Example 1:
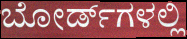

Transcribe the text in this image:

ಬೋರ್ಡ್‌ಗಳಲ್ಲಿ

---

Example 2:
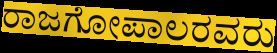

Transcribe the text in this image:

ರಾಜಗೋಪಾಲರವರು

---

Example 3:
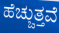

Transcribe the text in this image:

ಹೆಚ್ಚುತ್ತವೆ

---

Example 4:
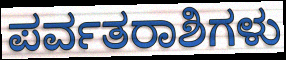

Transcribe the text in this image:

ಪರ್ವತರಾಶಿಗಳು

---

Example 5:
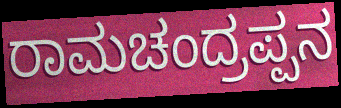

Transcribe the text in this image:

ರಾಮಚಂದ್ರಪ್ಪನ